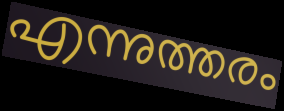
എന്നുത്തരം